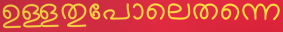
ഉള്ളതുപോലെതന്നെ